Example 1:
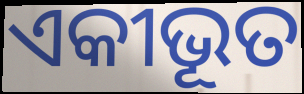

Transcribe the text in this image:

ଏକୀଭୂତ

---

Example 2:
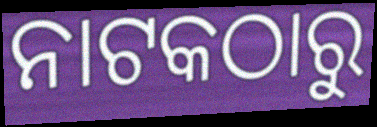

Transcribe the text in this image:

ନାଟକଠାରୁ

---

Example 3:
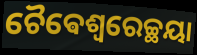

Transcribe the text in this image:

ଚୈଵେଶ୍ଵରେଚ୍ଛୟା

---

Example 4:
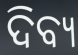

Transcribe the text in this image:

ଦିବ୍ୟ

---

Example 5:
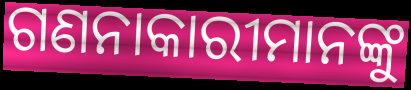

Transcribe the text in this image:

ଗଣନାକାରୀମାନଙ୍କୁ